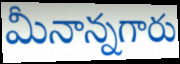
మీనాన్నగారు